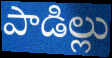
పాడిల్లు